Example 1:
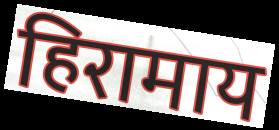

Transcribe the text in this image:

हिरामाय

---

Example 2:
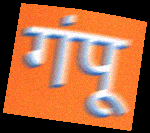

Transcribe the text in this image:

गंपू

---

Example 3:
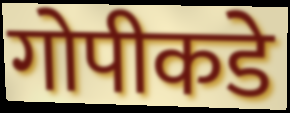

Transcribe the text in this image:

गोपीकडे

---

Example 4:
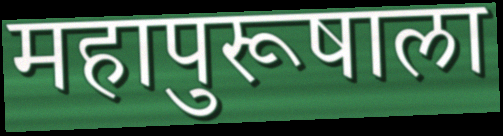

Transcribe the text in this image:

महापुरूषाला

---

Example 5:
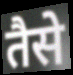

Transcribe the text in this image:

तैसे